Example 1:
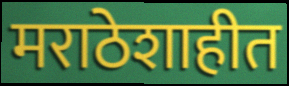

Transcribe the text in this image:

मराठेशाहीत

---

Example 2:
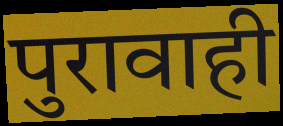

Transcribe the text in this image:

पुरावाही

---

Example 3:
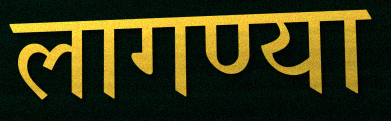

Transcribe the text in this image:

लागण्या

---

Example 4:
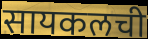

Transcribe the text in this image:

सायकलची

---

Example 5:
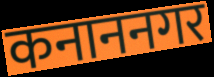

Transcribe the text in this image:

कनाननगर